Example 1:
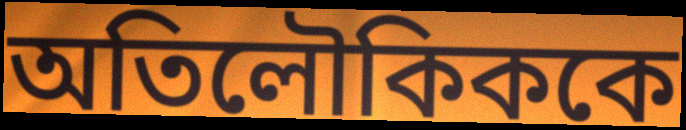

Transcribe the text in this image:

অতিলৌকিককে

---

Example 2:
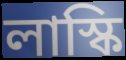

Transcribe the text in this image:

লাস্কি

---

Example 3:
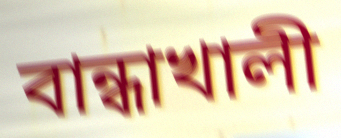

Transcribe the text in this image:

বান্ধাখালী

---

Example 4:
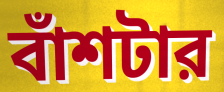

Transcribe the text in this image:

বাঁশটার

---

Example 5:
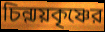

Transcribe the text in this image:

চিন্ময়কৃষ্ণের